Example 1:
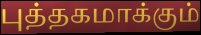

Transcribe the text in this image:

புத்தகமாக்கும்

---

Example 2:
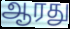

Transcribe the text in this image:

ஆரது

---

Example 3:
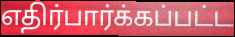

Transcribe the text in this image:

எதிர்பார்க்கப்பட்ட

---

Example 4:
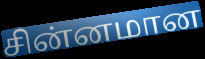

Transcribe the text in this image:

சின்னமான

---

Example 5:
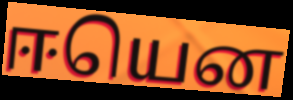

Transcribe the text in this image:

ஈயென